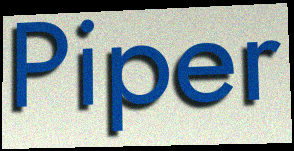
Piper